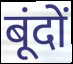
बूंदों